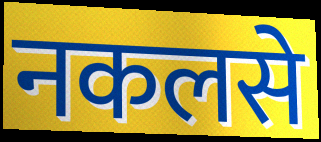
नकलसे